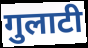
गुलाटी